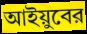
আইয়ুবের